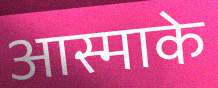
आस्माके